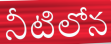
నీటిలోన